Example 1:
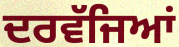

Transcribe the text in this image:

ਦਰਵੱਜਿਆਂ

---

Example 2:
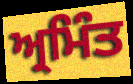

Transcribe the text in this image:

ਅ੍ਰਮਿੰਤ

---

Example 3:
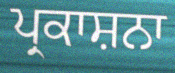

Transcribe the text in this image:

ਪ੍ਰਕਾਸ਼ਨਾ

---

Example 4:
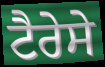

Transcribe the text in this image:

ਟੈਰੇਸੇ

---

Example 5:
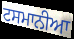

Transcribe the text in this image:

ਟਸਮਾਨੀਆ